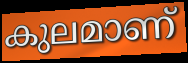
കുലമാണ്